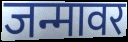
जन्मावर